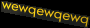
wewqewqewq